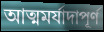
আত্মমর্যাদাপূর্ণ